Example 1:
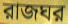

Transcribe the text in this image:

রাজঘর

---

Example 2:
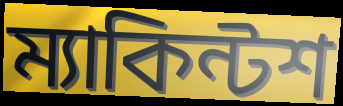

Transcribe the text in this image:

ম্যাকিন্টশ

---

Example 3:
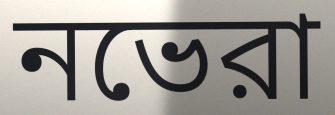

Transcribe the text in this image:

নভেরা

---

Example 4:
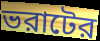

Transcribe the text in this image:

ভরাটের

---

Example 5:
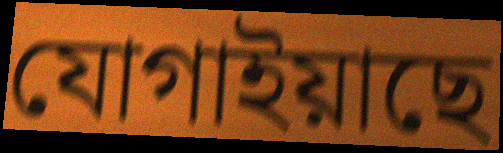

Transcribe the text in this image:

যোগাইয়াছে